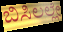
ಬಿಸಿಲಲ್ಲೇ